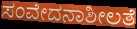
ಸಂವೇದನಾಶೀಲತೆ